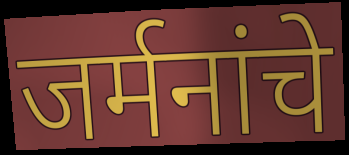
जर्मनांचे